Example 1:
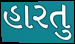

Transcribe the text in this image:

હારતુ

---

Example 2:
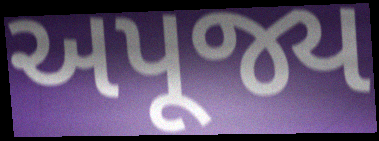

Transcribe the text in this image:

અપૂજ્ય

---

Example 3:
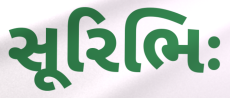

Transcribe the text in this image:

સૂરિભિઃ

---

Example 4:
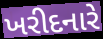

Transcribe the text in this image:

ખરીદનારે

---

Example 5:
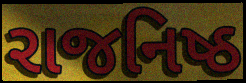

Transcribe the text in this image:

રાજનિષ્ઠ